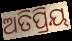
ଅତିପ୍ରିୟ